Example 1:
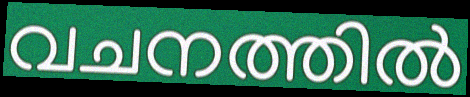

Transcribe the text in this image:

വചനത്തിൽ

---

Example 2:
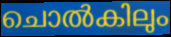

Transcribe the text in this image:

ചൊൽകിലും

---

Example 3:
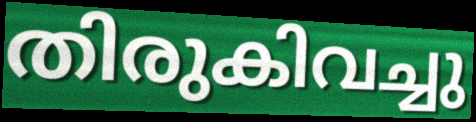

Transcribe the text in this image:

തിരുകിവച്ചു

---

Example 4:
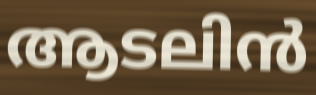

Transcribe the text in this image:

ആടലിൻ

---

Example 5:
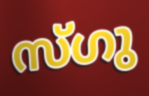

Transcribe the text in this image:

സ്ഗു